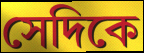
সেদিকে